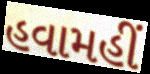
હવામહીં